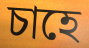
চাহে